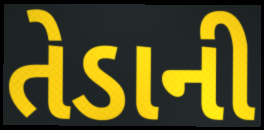
તેડાની